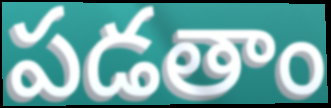
పడతాం